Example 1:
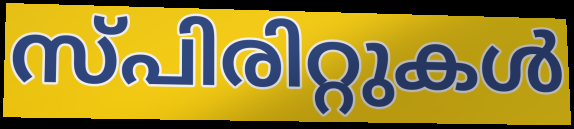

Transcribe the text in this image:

സ്പിരിറ്റുകൾ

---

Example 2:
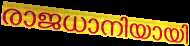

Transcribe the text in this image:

രാജധാനിയായി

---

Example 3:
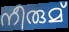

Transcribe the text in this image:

നീരുമ്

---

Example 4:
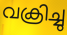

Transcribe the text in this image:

വക്രിച്ചു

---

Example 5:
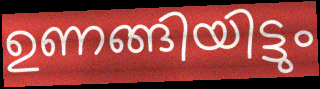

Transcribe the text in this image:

ഉണങ്ങിയിട്ടും